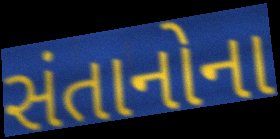
સંતાનોના